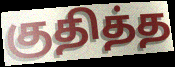
குதித்த